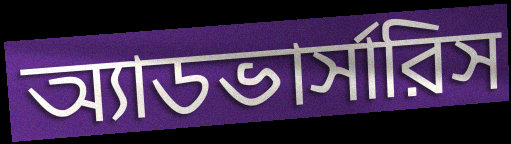
অ্যাডভার্সারিস